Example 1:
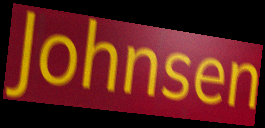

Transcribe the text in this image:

Johnsen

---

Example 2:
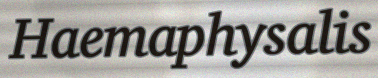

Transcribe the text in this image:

Haemaphysalis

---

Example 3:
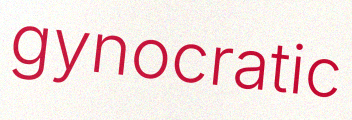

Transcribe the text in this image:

gynocratic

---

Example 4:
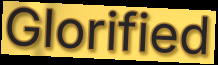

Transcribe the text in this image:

Glorified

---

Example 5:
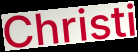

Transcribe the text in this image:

Christi